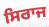
ਸਿਰਾਜ